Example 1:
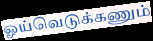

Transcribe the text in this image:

ஓய்வெடுக்கணும்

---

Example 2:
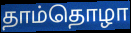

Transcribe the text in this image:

தாம்தொழா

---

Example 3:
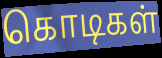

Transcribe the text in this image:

கொடிகள்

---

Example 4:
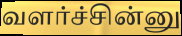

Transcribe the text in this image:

வளர்ச்சின்னு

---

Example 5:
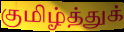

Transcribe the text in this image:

குமிழ்த்துக்